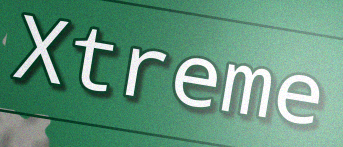
Xtreme